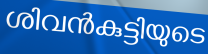
ശിവൻകുട്ടിയുടെ